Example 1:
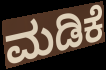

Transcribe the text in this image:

ಮಡಿಕೆ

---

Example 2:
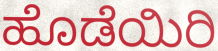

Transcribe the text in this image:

ಹೊಡೆಯಿರಿ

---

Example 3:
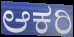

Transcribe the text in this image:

ಆಕರಿ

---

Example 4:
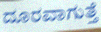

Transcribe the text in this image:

ದೂರವಾಗುತ್ತೆ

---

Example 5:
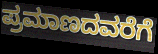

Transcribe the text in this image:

ಪ್ರಮಾಣದವರೆಗೆ